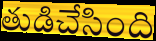
తుడిచేసింది